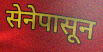
सेनेपासून